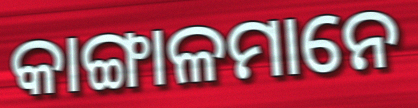
କାଙ୍ଗାଳମାନେ